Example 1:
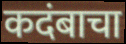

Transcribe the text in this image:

कदंबाचा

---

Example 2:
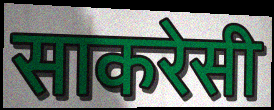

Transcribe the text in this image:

साकरेसी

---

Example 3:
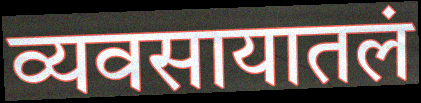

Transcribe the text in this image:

व्यवसायातलं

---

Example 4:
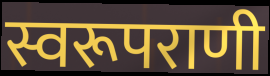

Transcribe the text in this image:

स्वरूपराणी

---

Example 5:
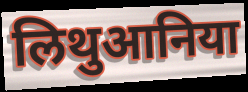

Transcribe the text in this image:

लिथुआनिया